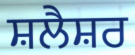
ਸ਼ਲੈਸ਼ਰ